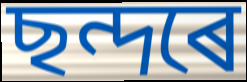
ছন্দৰে